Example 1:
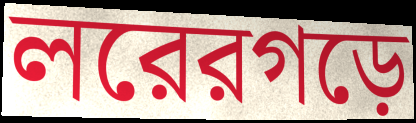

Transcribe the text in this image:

লরেরগড়ে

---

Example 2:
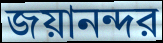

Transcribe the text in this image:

জয়ানন্দর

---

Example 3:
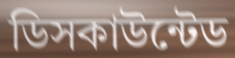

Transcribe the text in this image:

ডিসকাউন্টেড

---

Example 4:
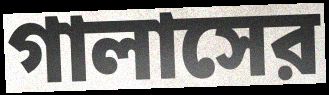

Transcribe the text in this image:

গালাসের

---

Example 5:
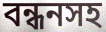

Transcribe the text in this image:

বন্ধনসহ